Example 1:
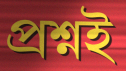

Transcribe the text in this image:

প্রশ্নই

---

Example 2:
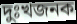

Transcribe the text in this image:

দুঃখজনক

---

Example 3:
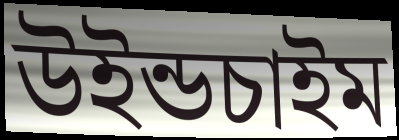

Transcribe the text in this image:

উইন্ডচাইম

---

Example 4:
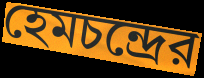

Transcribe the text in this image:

হেমচন্দ্রের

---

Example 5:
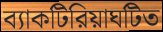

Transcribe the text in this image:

ব্যাকটিরিয়াঘটিত